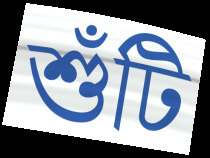
শুঁটি